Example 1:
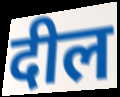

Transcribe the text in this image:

दील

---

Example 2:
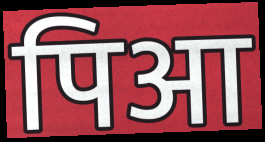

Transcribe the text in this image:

पिआ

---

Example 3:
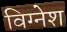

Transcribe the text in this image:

विग्‍नेश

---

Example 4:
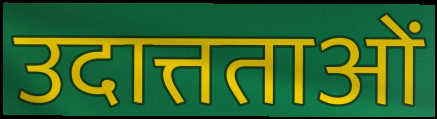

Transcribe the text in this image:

उदात्तताओं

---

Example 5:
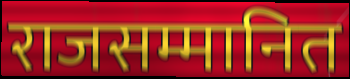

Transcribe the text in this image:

राजसम्मानित